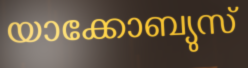
യാക്കോബ്യുസ്